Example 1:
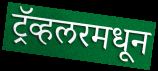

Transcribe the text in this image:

ट्रॅव्हलरमधून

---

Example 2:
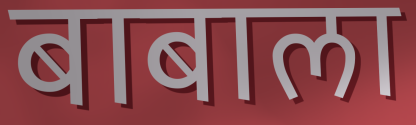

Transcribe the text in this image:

बाबाला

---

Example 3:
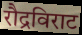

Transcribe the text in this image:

रौद्रविराट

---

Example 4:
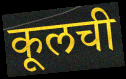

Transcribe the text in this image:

कूलची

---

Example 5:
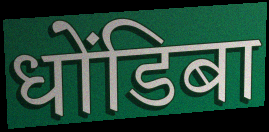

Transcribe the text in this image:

धोंडिबा